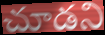
చూడని